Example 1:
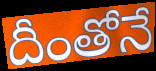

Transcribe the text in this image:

దీంతోనే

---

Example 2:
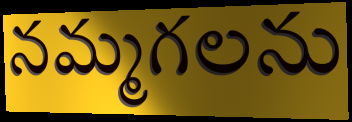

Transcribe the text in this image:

నమ్మగలను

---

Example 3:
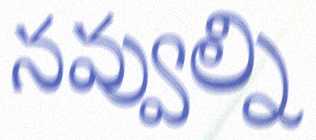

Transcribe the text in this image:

నవ్వుల్ని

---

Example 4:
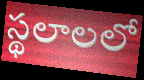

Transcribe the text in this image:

స్థలాలలో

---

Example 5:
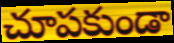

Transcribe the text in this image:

చూపకుండా